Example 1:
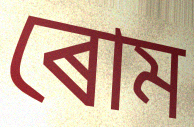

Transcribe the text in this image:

ৰোম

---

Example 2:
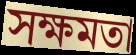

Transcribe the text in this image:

সক্ষমতা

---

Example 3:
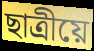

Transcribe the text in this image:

ছাত্ৰীয়ে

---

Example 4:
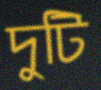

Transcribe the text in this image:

দুটি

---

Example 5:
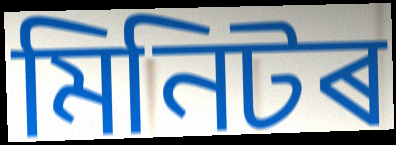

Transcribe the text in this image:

মিনিটৰ